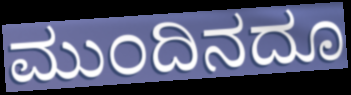
ಮುಂದಿನದೂ